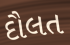
દૌલત